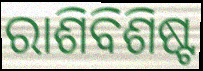
ରାଶିବିଶିଷ୍ଟ